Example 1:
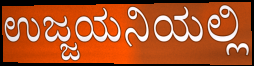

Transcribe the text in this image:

ಉಜ್ಜಯನಿಯಲ್ಲಿ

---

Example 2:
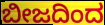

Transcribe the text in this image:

ಬೀಜದಿಂದ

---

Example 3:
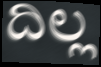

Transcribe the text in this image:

ದಿಲ್ಲ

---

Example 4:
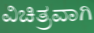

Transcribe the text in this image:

ವಿಚಿತ್ರವಾಗಿ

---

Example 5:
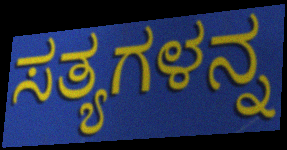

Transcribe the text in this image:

ಸತ್ಯಗಳನ್ನ